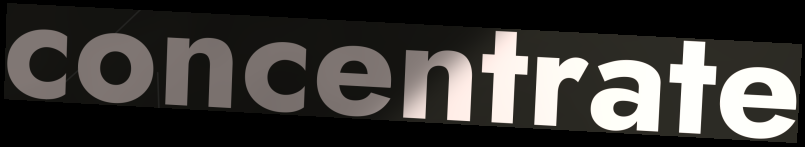
concentrate